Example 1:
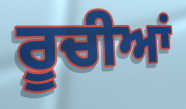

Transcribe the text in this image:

ਰੂਚੀਆਂ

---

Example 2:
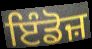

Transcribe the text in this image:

ਇੰਡੋਜ਼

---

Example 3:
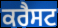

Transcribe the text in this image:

ਕਰੈਸਟ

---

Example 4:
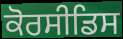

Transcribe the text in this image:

ਕੋਰਸੀਡਿਸ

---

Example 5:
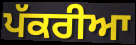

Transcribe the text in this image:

ਪੱਕਰੀਆ